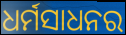
ଧର୍ମସାଧନର